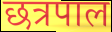
छत्रपाल